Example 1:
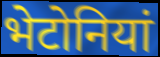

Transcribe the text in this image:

भेटोनियां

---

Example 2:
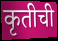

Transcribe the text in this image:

कृतीची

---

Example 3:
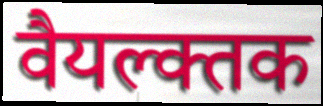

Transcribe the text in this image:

वैयल्क्तक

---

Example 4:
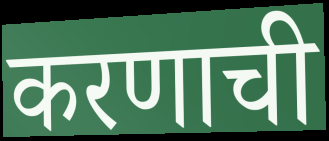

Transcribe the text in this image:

करणाची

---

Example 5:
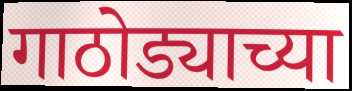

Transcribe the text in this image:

गाठोड्याच्या